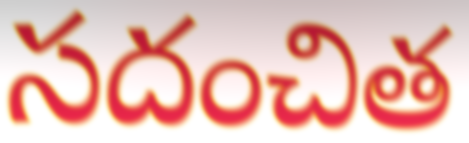
సదంచిత